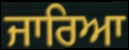
ਜਾਰਿਆ